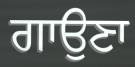
ਗਾਉਣਾ